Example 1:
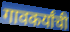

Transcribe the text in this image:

गावकर्यांची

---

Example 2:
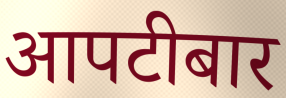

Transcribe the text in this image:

आपटीबार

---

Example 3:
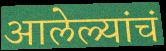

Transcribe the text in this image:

आलेल्यांचं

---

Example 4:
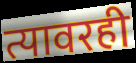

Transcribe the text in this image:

त्यावरही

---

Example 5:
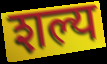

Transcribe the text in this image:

शल्‍य